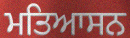
ਮਤਿਆਸਨ